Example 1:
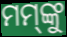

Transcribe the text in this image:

ମମ୍‌ଙ୍କୁ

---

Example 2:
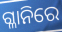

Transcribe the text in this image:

ଗ୍ଳାନିରେ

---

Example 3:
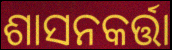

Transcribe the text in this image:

ଶାସନକର୍ତ୍ତା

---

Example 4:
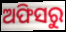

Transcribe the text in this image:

ଅଫିସରୁ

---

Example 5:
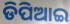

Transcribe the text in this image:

ଡିପିଆଇ